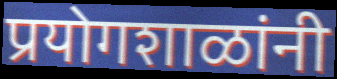
प्रयोगशाळांनी